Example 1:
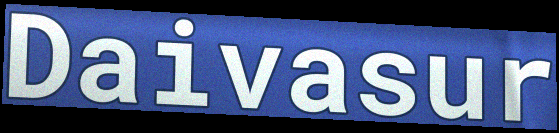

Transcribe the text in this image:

Daivasur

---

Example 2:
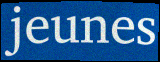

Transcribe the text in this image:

jeunes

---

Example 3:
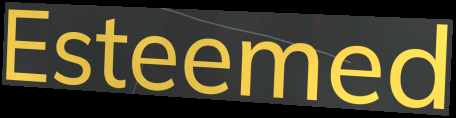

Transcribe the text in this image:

Esteemed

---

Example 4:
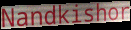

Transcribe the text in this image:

Nandkishor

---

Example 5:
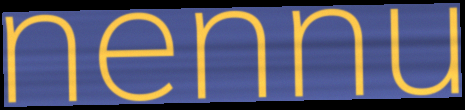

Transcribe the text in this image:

nennu